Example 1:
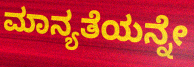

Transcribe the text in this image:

ಮಾನ್ಯತೆಯನ್ನೇ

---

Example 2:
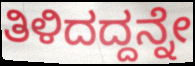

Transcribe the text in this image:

ತಿಳಿದದ್ದನ್ನೇ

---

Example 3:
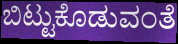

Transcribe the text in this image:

ಬಿಟ್ಟುಕೊಡುವಂತೆ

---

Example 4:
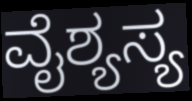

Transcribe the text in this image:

ವೈಶ್ಯಸ್ಯ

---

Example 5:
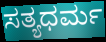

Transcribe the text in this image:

ಸತ್ಯಧರ್ಮ